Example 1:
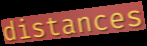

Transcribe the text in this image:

distances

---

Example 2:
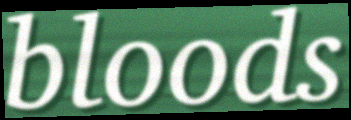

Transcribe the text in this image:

bloods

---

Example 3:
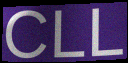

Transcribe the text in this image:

CLL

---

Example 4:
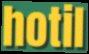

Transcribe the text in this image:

hotil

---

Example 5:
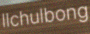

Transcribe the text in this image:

Ilchulbong